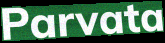
Parvata